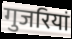
गुजरियां